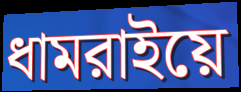
ধামরাইয়ে